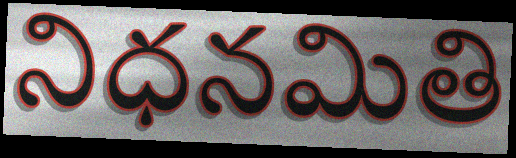
నిధనమితి